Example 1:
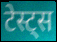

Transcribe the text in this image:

टेस्ट्स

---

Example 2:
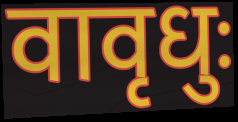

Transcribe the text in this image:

वावृधुः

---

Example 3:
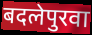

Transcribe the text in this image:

बदलेपुरवा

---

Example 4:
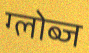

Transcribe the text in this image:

ग्लोब्ज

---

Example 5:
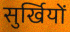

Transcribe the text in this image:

सुर्खियों